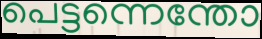
പെട്ടന്നെന്തോ